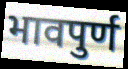
भावपुर्ण